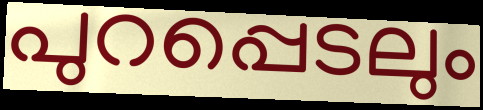
പുറപ്പെടലും